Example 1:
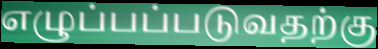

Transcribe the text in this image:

எழுப்பப்படுவதற்கு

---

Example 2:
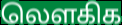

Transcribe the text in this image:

லௌகிக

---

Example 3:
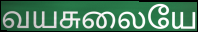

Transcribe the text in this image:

வயசுலையே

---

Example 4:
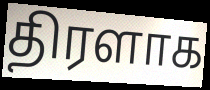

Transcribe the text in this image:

திரளாக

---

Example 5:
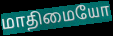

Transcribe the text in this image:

மாதிமையோ